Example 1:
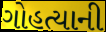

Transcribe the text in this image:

ગોહત્યાની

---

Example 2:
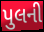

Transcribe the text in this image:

પુલની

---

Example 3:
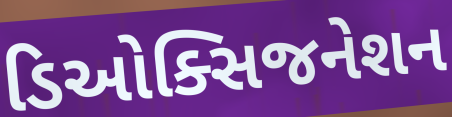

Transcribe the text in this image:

ડિઓક્સિજનેશન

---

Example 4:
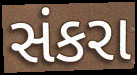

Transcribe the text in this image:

સંકરા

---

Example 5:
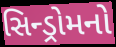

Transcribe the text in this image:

સિન્ડ્રોમનો